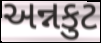
અન્નકુટ